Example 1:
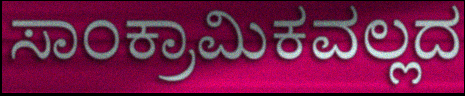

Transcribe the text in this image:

ಸಾಂಕ್ರಾಮಿಕವಲ್ಲದ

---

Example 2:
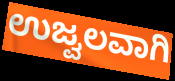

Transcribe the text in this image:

ಉಜ್ವಲವಾಗಿ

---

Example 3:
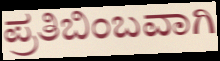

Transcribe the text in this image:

ಪ್ರತಿಬಿಂಬವಾಗಿ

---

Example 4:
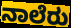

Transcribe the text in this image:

ನಾಲೆರು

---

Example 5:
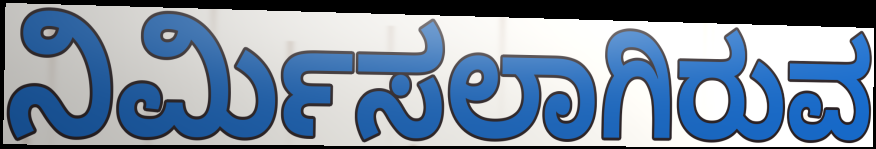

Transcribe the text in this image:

ನಿರ್ಮಿಸಲಾಗಿರುವ